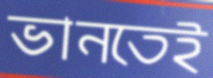
ভানতেই